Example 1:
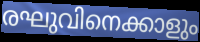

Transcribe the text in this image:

രഘുവിനെക്കാളും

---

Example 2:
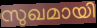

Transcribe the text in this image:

സുഖമായി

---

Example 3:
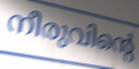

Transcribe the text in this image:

നീരുവിന്റെ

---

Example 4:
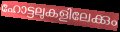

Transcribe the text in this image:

ഹോട്ടലുകളിലേക്കും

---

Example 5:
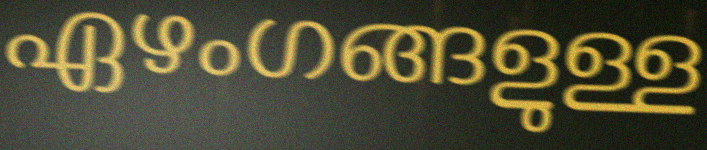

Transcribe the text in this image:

ഏഴംഗങ്ങളുള്ള